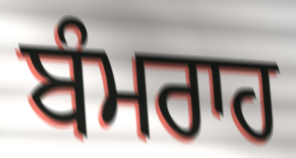
ਬੰਮਰਾਹ